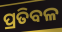
ପ୍ରତିବଳ